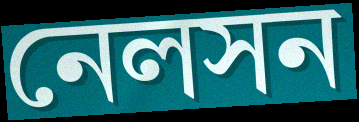
নেলসন